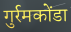
गुर्रमकोंडा